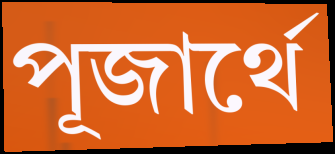
পূজার্থে